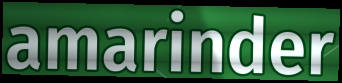
amarinder